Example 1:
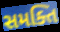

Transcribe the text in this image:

સમક્તિ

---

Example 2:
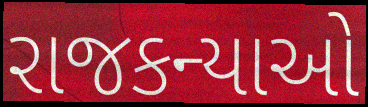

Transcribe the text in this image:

રાજકન્યાઓ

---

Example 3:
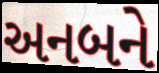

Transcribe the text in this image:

અનબને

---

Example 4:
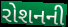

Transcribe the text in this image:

રોશનની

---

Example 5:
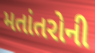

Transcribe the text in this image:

મતાંતરોની